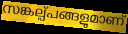
സങ്കല്പ്പങ്ങളുമാണ്